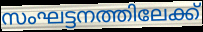
സംഘട്ടനത്തിലേക്ക്